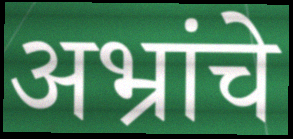
अभ्रांचे